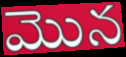
మొన